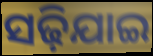
ସଢ଼ିଯାଇ